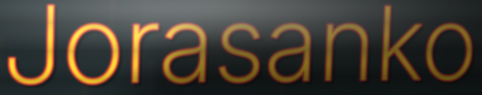
Jorasanko